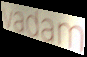
vadam